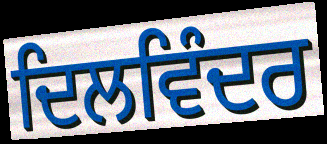
ਦਿਲਵਿੰਦਰ